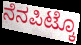
ನೆನಪಿಟ್ಕೊ